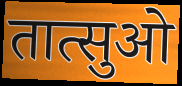
तात्सुओ